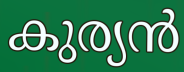
കുര്യൻ